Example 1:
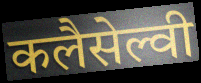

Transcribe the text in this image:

कलैसेल्वी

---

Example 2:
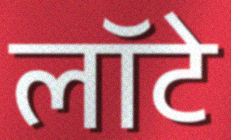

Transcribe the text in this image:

लॉटे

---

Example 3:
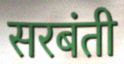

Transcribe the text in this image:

सरबंती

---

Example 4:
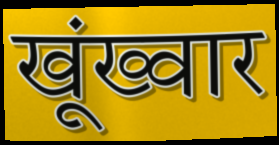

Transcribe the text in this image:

खूंख्वार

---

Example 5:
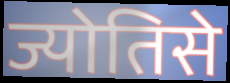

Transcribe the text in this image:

ज्योतिसे